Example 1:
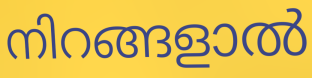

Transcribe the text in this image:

നിറങ്ങളാൽ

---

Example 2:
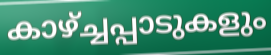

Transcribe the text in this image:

കാഴ്ച്ചപ്പാടുകളും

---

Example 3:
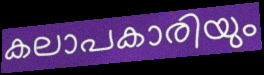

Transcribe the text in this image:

കലാപകാരിയും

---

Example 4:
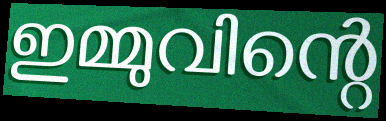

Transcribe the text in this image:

ഇമ്മുവിന്റെ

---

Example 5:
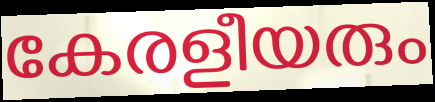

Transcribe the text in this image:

കേരളീയരും